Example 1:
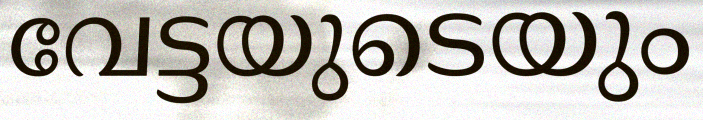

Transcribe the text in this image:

വേട്ടയുടെയും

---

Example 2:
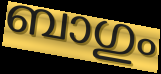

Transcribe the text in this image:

ബാഗും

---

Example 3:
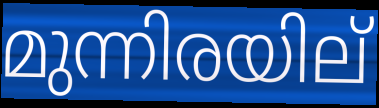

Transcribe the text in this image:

മുന്നിരയില്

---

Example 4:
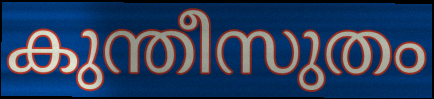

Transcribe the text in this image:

കുന്തീസുതം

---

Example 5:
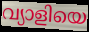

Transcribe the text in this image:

വ്യാളിയെ